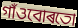
গাঁওবোৰতো